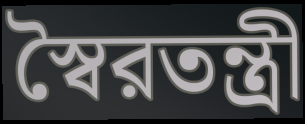
স্বৈরতন্ত্রী